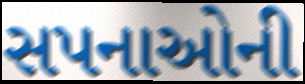
સપનાઓની